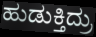
ಹುಡುಕ್ತಿದ್ರು